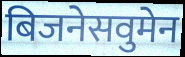
बिजनेसवुमेन